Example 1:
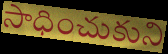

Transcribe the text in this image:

సాధించుకుని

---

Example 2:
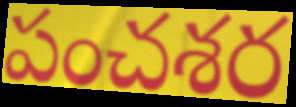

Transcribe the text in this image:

పంచశర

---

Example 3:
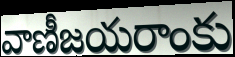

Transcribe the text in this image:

వాణీజయరాంకు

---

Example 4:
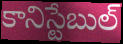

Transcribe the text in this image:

కానిస్టేబుల్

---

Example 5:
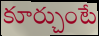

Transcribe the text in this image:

కూర్చుంటే